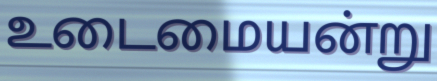
உடைமையன்று